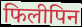
फिलीपिन